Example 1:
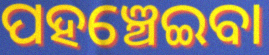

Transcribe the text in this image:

ପହଞ୍ଚେଇବା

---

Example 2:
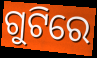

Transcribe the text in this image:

ଗୁଟିରେ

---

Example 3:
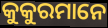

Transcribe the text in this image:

କୁକୁରମାନେ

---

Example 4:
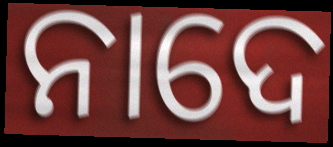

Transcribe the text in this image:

ନାଦେ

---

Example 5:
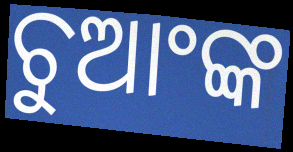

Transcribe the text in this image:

ଚୁଆଂଙ୍କ